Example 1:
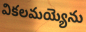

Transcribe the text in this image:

వికలమయ్యెను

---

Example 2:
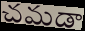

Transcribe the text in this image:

చమడా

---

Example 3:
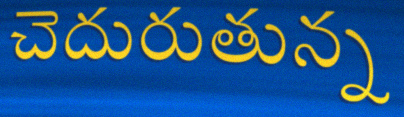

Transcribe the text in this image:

చెదురుతున్న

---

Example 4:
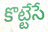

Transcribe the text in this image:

కొట్టేసే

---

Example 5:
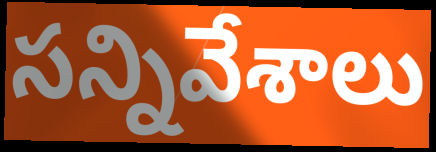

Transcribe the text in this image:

సన్నివేశాలు